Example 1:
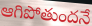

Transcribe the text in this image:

ఆగిపోతుందనే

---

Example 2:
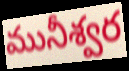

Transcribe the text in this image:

మునీశ్వర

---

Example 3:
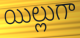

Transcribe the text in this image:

యిల్లుగా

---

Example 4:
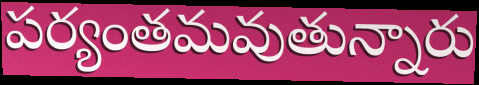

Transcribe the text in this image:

పర్యంతమవుతున్నారు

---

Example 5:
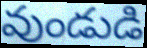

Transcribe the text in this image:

వుండుడి